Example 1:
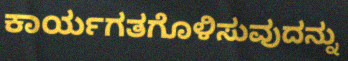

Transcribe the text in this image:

ಕಾರ್ಯಗತಗೊಳಿಸುವುದನ್ನು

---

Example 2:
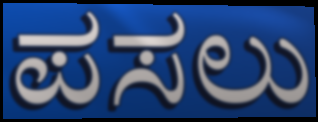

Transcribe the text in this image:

ಪಸಲು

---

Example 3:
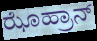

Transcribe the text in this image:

ಝೊಹ್ರಾನ್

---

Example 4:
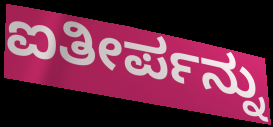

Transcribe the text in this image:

ಐತೀರ್ಪನ್ನು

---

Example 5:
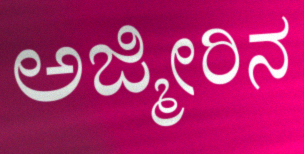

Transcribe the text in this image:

ಅಜ್ಮೀರಿನ